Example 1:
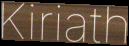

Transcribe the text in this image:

Kiriath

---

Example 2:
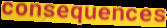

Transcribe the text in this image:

consequences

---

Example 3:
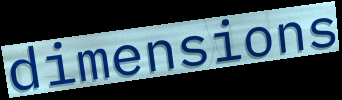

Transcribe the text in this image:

dimensions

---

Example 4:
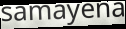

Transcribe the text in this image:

samayena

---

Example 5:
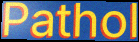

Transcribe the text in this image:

Pathol